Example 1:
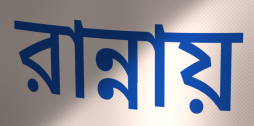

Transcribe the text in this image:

রান্নায়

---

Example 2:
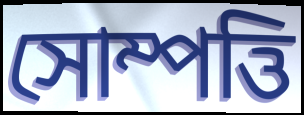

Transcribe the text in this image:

সোম্পত্তি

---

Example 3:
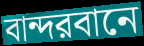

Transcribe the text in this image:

বান্দরবানে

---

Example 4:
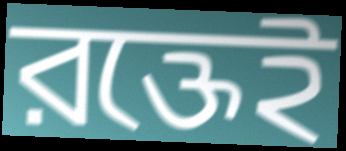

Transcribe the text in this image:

রক্তেই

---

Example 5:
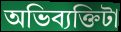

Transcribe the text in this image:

অভিব্যক্তিটা